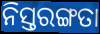
ନିସ୍ତରଙ୍ଗତା